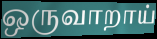
ஒருவாறாய்